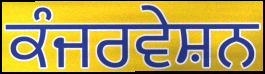
ਕੰਜਰਵੇਸ਼ਨ